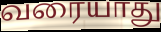
வரையாது